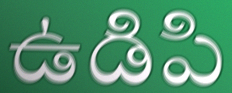
ఉడిపి